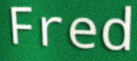
Fred